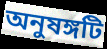
অনুষঙ্গটি